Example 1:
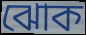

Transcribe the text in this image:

ঝোক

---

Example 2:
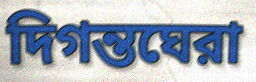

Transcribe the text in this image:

দিগন্তঘেরা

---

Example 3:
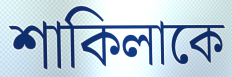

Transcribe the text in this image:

শাকিলাকে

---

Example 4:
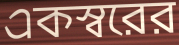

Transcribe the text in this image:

একস্বরের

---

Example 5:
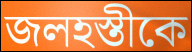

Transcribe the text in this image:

জলহস্তীকে